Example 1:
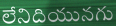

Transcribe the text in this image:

లేనిదియునగు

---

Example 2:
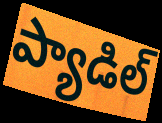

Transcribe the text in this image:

ప్యాడిల్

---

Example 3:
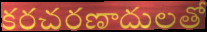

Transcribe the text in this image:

కరచరణాదులతో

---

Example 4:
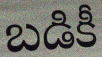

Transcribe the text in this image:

బడికీ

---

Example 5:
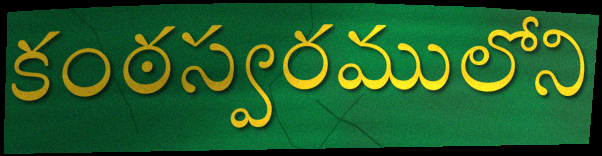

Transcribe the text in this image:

కంఠస్వరములోని